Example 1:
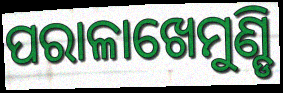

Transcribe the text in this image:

ପରାଳାଖେମୁଣ୍ଡି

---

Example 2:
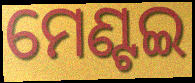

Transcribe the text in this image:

ମେଣ୍ଟଇ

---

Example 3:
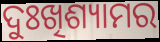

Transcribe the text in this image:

ଦୁଃଖିଶ୍ୟାମର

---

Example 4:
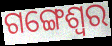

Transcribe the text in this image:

ଗଙ୍ଗେଶ୍ଵର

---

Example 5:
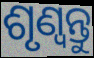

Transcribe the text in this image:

ଶୃଣ୍ଵନ୍ତୁ